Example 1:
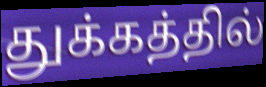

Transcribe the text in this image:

துக்கத்தில்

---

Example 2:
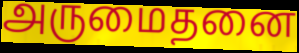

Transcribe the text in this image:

அருமைதனை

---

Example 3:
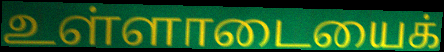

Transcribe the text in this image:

உள்ளாடையைக்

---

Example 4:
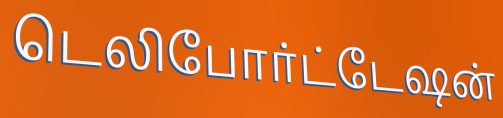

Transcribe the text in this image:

டெலிபோர்ட்டேஷன்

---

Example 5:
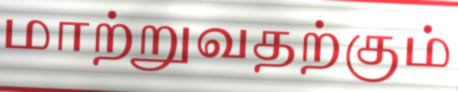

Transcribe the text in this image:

மாற்றுவதற்கும்